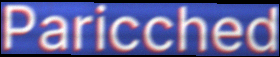
Paricched